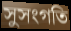
সুসংগতি